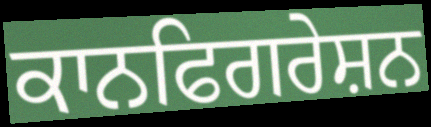
ਕਾਨਫਿਗਰੇਸ਼ਨ